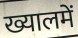
ख्यालमें